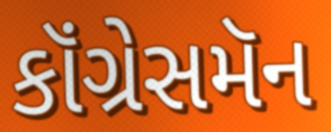
કૉંગ્રેસમૅન